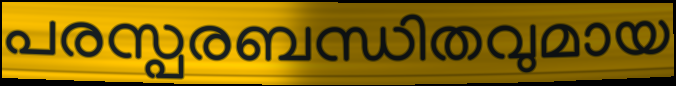
പരസ്പരബന്ധിതവുമായ